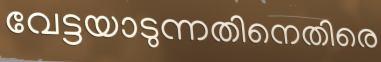
വേട്ടയാടുന്നതിനെതിരെ